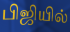
பிஜியில்